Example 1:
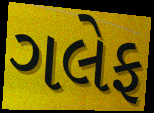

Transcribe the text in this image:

ગલેફ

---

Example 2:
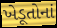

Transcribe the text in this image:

ખેડૂતોનાં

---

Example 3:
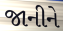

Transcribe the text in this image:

જાનીને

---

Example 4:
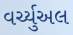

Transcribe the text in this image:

વર્ચ્યુઅલ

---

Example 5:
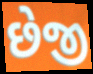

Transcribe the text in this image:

છેજી